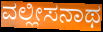
ವಲ್ಲೀಸನಾಥ